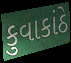
કુવાકાંઠે